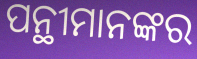
ପନ୍ଥୀମାନଙ୍କର